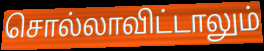
சொல்லாவிட்டாலும்